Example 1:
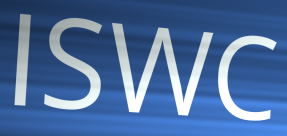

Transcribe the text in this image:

ISWC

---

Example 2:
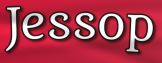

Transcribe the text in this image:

Jessop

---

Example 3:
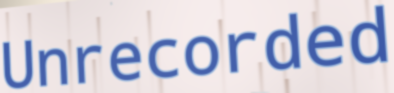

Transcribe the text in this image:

Unrecorded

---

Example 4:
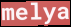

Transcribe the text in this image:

melya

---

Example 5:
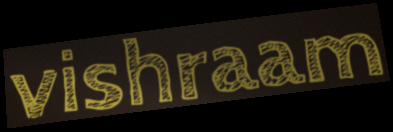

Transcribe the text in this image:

vishraam